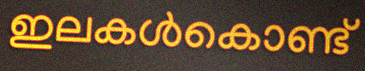
ഇലകൾകൊണ്ട്